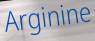
Arginine